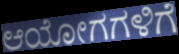
ಆಯೋಗಗಳಿಗೆ